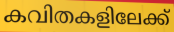
കവിതകളിലേക്ക്